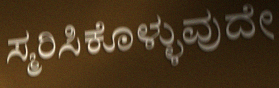
ಸ್ಮರಿಸಿಕೊಳ್ಳುವುದೇ